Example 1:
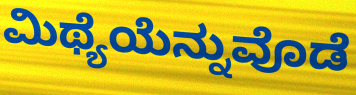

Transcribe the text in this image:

ಮಿಥ್ಯೆಯೆನ್ನುವೊಡೆ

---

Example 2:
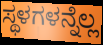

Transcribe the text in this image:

ಸ್ಥಳಗಳನ್ನೆಲ್ಲ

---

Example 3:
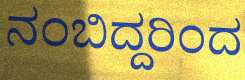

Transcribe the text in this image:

ನಂಬಿದ್ದರಿಂದ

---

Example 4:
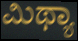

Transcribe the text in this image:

ಮಿಥ್ಯಾ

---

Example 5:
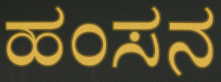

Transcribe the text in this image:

ಹಂಸನ